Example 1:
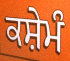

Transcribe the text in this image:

ਕਸ਼ੇਮੰ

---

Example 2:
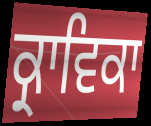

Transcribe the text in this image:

ਕ੍ਰਾਵਿਕਾ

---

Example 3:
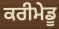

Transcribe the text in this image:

ਕਰੀਮੇਡੂ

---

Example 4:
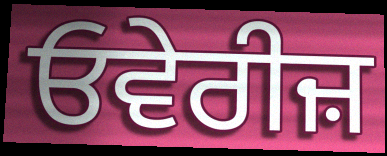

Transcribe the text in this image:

ਓਵੇਰੀਜ਼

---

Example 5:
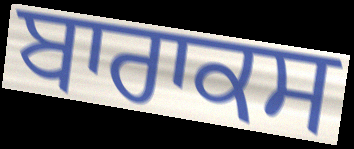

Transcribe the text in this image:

ਬਾਰਾਕਸ